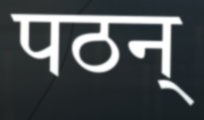
पठन्